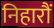
निहारौं